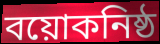
বয়োকনিষ্ঠ